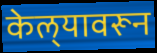
केल्यावरून